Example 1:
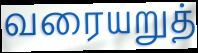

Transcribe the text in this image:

வரையறுத்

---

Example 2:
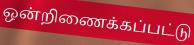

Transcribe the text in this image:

ஒன்றிணைக்கப்பட்டு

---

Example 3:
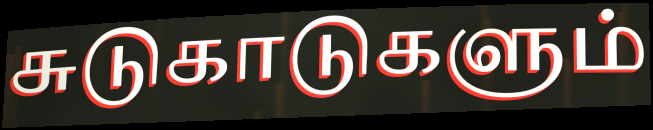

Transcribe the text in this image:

சுடுகாடுகளும்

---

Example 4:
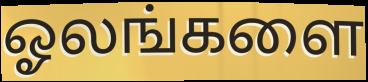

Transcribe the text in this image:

ஓலங்களை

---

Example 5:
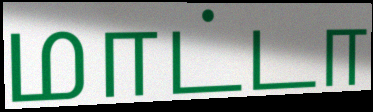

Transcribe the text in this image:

மாட்டா